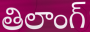
తిలాంగ్